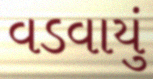
વડવાયું